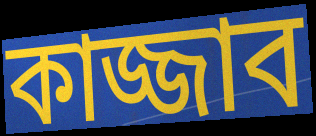
কাজ্জাব